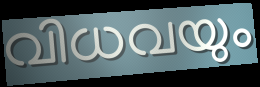
വിധവയും